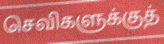
செவிகளுக்குத்